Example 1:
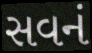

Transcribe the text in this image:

સવનં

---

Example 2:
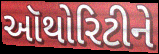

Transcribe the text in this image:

ઑથોરિટીને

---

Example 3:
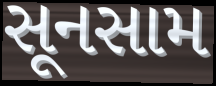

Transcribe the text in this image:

સૂનસામ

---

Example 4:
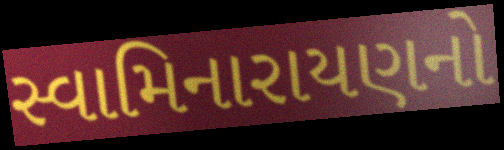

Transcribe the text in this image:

સ્વામિનારાયણનો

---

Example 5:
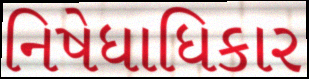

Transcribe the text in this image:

નિષેધાધિકાર